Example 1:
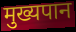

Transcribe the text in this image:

मुख्यपान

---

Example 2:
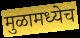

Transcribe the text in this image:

मुळामध्येच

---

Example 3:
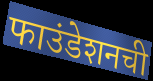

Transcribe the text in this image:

फाउंडेशनची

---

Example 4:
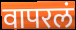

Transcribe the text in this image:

वापरलं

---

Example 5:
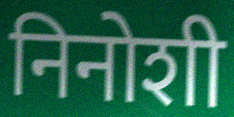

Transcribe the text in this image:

निनोशी